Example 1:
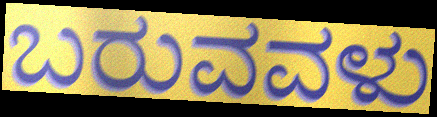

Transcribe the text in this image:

ಬರುವವಳು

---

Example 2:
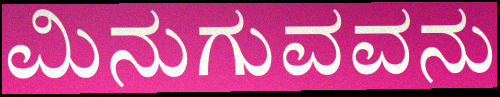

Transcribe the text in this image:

ಮಿನುಗುವವನು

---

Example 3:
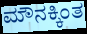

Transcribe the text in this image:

ಮೌನಕ್ಕಿಂತ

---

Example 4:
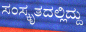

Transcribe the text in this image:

ಸಂಸ್ಕೃತದಲ್ಲಿದ್ದು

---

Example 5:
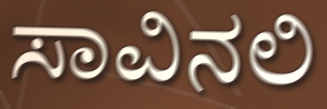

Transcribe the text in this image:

ಸಾವಿನಲಿ